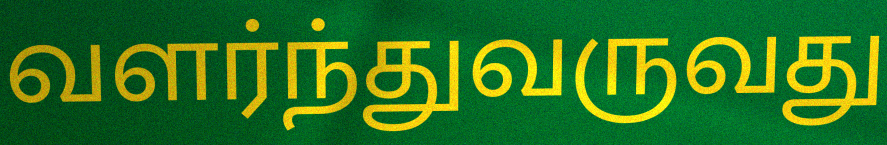
வளர்ந்துவருவது